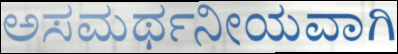
ಅಸಮರ್ಥನೀಯವಾಗಿ